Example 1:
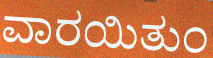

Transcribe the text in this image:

ವಾರಯಿತುಂ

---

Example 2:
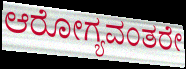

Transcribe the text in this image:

ಆರೋಗ್ಯವಂತರೇ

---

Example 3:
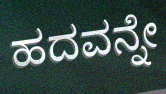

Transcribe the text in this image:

ಹದವನ್ನೇ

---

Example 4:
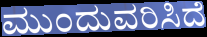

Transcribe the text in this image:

ಮುಂದುವರಿಸಿದೆ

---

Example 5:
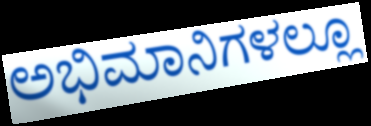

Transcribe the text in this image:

ಅಭಿಮಾನಿಗಳಲ್ಲೂ